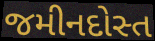
જમીનદોસ્ત